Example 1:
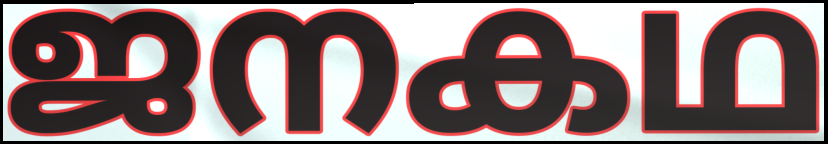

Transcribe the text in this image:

ജനകഥ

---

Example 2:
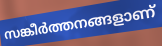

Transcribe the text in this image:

സങ്കീർത്തനങ്ങളാണ്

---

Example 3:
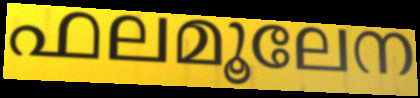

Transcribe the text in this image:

ഫലമൂലേന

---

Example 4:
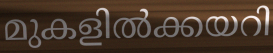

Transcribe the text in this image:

മുകളിൽക്കയറി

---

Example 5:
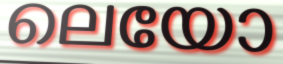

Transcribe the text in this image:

ലെയോ